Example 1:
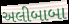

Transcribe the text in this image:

અલીબાબા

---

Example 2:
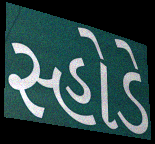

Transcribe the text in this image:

સ્હોડે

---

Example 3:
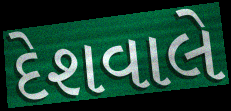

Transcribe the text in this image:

દેશવાલે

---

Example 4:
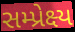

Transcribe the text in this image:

સમ્પ્રેક્ષ્ય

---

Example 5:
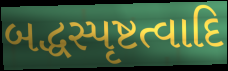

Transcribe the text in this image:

બદ્ધસ્પૃષ્ટત્વાદિ